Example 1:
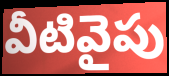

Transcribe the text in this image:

వీటివైపు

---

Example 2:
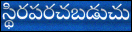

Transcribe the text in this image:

స్థిరపరచబడుచు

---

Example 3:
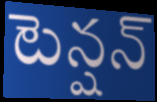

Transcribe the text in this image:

టెన్షన్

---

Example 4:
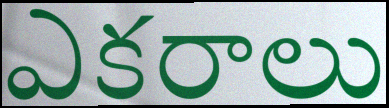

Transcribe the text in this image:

ఎకరాలు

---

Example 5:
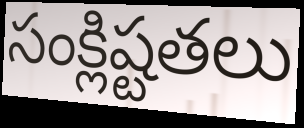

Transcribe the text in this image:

సంక్లిష్టతలు